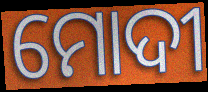
ମୋଦୀ